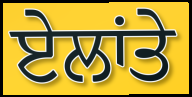
ਏਲਾਂਤੇ